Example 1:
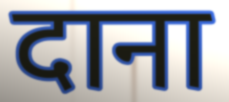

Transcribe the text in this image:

दाना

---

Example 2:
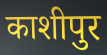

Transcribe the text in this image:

काशीपुर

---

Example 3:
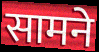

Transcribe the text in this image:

सामने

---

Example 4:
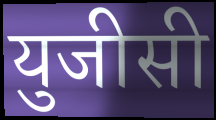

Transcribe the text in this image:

युजीसी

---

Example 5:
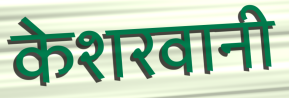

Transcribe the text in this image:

केशरवानी